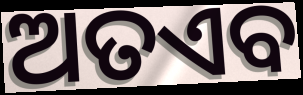
ଅତଏବ